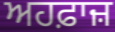
ਅਹਫ਼ਾਜ਼